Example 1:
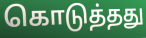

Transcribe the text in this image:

கொடுத்தது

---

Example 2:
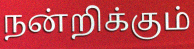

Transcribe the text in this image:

நன்றிக்கும்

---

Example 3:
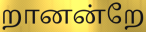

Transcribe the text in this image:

றானன்றே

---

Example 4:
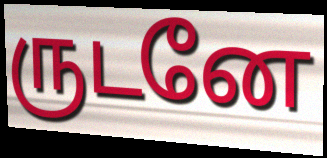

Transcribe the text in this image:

ருடனே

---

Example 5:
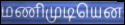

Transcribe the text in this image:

மணிமுடியென